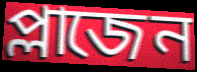
প্লাজেন